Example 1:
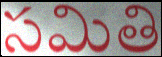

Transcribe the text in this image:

సమితి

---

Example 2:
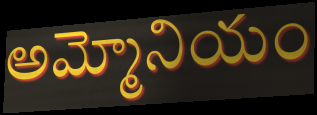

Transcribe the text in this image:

అమ్మోనియం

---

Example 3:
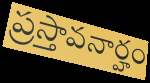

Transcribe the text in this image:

ప్రస్తావనార్హం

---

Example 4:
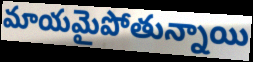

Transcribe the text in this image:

మాయమైపోతున్నాయి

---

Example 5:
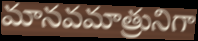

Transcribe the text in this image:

మానవమాత్రునిగా